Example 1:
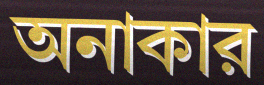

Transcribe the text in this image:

অনাকার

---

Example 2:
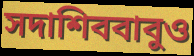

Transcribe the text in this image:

সদাশিববাবুও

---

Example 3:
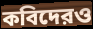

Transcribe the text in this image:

কবিদেরও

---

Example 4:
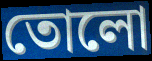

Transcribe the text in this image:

তোলো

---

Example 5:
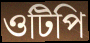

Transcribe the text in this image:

ওটিপি